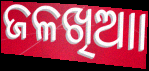
ଜଳଖିଆା